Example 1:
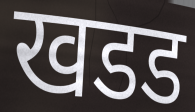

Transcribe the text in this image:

खडड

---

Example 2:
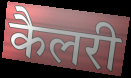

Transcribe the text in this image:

कैलरी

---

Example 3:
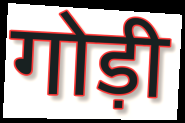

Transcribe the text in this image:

गोड़ी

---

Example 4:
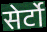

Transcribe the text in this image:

सेर्टो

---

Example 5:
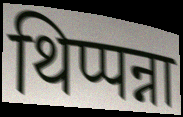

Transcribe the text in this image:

थिप्पन्ना